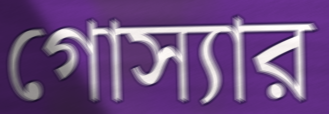
গোস্যার